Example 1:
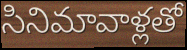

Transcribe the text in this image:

సినిమావాళ్లతో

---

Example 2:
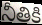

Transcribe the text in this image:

నీతికి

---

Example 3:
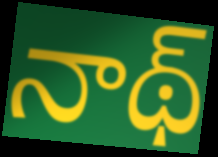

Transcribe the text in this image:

నాథ్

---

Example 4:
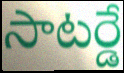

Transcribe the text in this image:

సాటర్డే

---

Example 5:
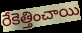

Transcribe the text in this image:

రేకెత్తించాయి